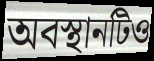
অবস্থানটিও